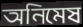
অনিমেষ